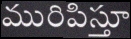
మురిపిస్తూ